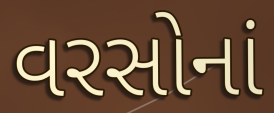
વરસોનાં